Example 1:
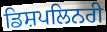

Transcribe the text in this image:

ਡਿਸ਼ਪਲਿਨਰੀ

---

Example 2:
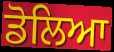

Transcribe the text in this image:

ਡੋਲਿਆ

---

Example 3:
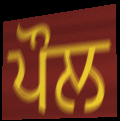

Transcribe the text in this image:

ਪੌਲ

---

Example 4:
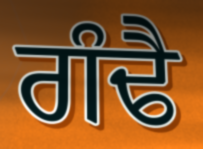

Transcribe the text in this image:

ਗੰਢੈ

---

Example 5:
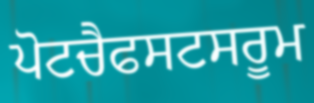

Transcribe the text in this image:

ਪੋਟਚੈਫਸਟਸਰੂਮ